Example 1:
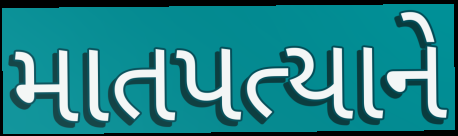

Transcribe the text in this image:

માતપત્યાને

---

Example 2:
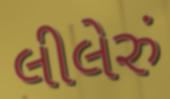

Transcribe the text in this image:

લીલેરું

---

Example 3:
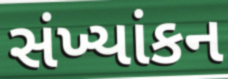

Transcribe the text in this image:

સંખ્યાંકન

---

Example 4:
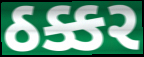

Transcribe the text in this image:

ઠક્કર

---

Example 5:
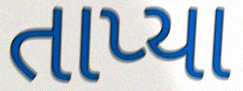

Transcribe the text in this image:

તાપ્યા